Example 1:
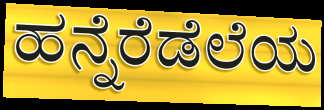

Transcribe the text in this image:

ಹನ್ನೆರೆಡೆಲೆಯ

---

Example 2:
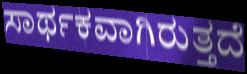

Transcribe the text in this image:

ಸಾರ್ಥಕವಾಗಿರುತ್ತದೆ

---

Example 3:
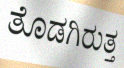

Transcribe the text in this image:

ತೊಡಗಿರುತ್ತ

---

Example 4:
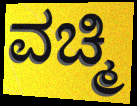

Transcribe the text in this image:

ವಚ್ಮಿ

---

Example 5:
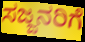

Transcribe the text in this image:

ಸಜ್ಜನರಿಗೆ